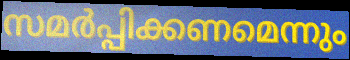
സമർപ്പിക്കണമെന്നും